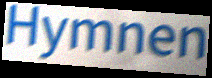
Hymnen